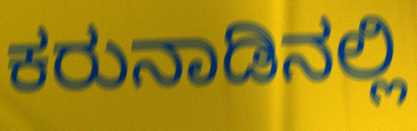
ಕರುನಾಡಿನಲ್ಲಿ